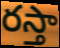
రస్తా